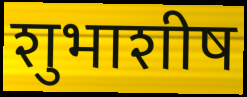
शुभाशीष